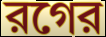
রগের